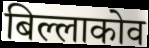
बिल्लाकोव